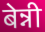
बेन्नी